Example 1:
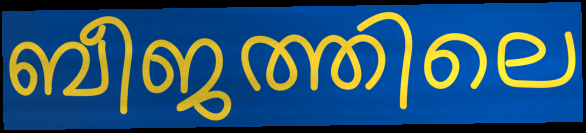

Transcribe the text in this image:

ബീജത്തിലെ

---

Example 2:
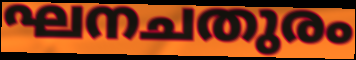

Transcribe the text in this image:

ഘനചതുരം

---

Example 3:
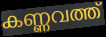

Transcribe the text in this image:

കണ്ണവത്ത്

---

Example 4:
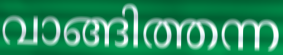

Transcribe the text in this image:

വാങ്ങിത്തന്ന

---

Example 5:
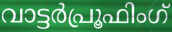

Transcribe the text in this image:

വാട്ടർപ്രൂഫിംഗ്